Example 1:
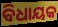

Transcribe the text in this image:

ବିଧାୟକ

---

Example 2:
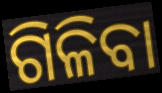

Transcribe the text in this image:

ଗିଳିବା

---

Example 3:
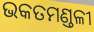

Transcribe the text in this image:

ଭକତମଣ୍ଡଳୀ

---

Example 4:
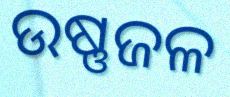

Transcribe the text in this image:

ଉଷ୍ଣଜଳ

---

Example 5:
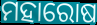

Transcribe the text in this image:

ମହାରୋଷ